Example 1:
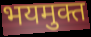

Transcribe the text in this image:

भयमुक्त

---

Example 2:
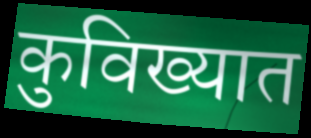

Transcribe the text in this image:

कुविख्यात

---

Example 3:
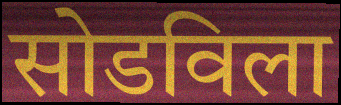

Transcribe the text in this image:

सोडविला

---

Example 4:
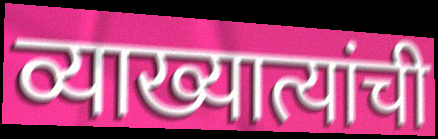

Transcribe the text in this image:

व्याख्यात्यांची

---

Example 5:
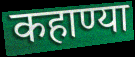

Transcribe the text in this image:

कहाण्या